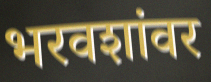
भरवशांवर